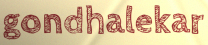
gondhalekar